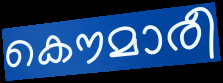
കൌമാരീ